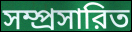
সম্প্রসারিত